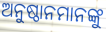
ଅନୁଷ୍ଠାନମାନଙ୍କୁ